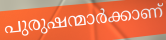
പുരുഷന്മാർക്കാണ്